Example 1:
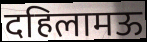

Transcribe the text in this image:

दहिलामऊ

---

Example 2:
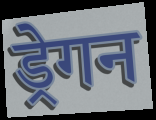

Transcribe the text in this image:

ड्रेगन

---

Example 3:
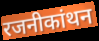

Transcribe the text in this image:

रजनीकांथन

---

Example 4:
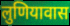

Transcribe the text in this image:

लुणियावास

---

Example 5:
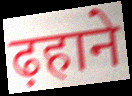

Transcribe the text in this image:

ढ़हाने